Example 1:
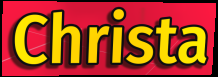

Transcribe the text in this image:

Christa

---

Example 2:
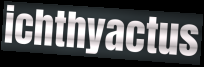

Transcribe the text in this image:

ichthyactus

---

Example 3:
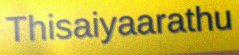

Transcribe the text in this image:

Thisaiyaarathu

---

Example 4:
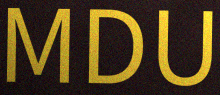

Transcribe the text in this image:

MDU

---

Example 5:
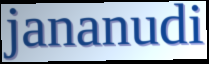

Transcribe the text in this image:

jananudi